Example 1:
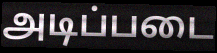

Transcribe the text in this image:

அடிப்படை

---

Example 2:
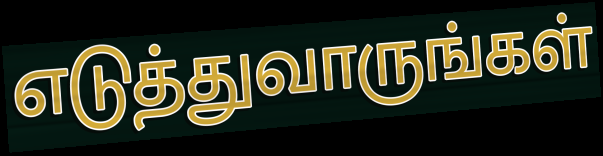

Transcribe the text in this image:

எடுத்துவாருங்கள்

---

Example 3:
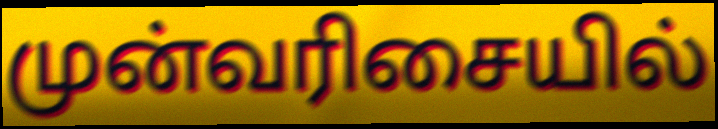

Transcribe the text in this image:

முன்வரிசையில்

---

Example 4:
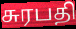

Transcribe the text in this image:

சுரபதி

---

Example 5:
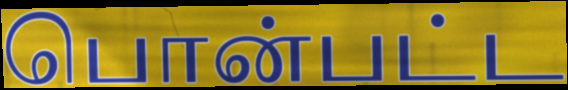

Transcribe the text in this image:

பொன்பட்ட